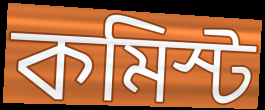
কমিস্ট